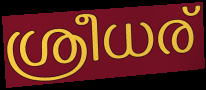
ശ്രീധര്